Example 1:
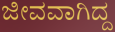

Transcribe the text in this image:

ಜೀವವಾಗಿದ್ದ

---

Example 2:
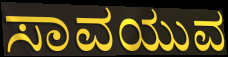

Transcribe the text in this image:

ಸಾವಯುವ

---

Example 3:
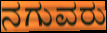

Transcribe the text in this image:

ನಗುವರು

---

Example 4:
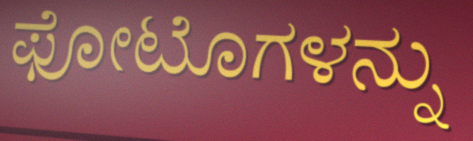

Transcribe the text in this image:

ಫೋಟೊಗಳನ್ನು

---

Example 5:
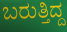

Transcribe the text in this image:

ಬರುತ್ತಿದ್ದ